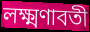
লক্ষ্মণাবতী